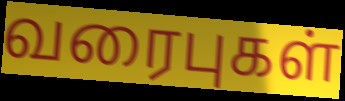
வரைபுகள்